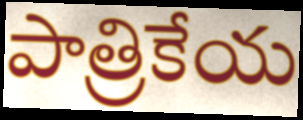
పాత్రికేయ